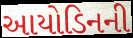
આયોડિનની